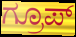
ಗ್ರೂಪ್